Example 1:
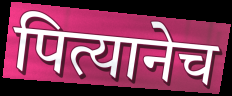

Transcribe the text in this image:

पित्यानेच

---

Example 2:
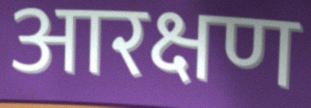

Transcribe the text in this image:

आरक्षण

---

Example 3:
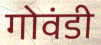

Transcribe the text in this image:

गोवंडी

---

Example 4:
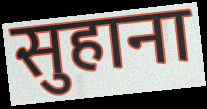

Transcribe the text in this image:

सुहाना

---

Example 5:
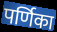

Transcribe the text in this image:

पर्णिका